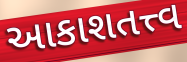
આકાશતત્ત્વ